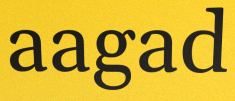
aagad